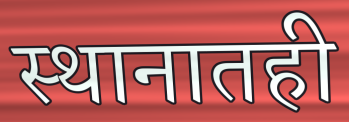
स्थानातही